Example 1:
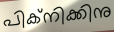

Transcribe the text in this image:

പിക്നിക്കിനു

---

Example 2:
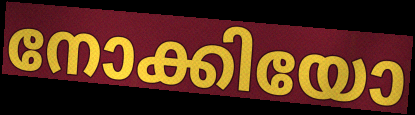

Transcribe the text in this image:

നോക്കിയോ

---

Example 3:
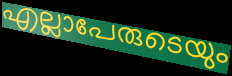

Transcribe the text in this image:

എല്ലാപേരുടെയും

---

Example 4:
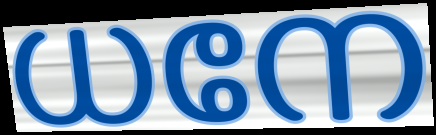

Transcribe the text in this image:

ധനേ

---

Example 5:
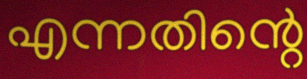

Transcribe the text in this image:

എന്നതിന്റെ